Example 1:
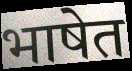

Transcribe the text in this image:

भाषेत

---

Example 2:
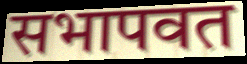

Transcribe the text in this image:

सभापवत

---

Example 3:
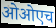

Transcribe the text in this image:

ओओएच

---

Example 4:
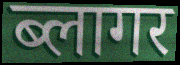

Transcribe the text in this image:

ब्लागर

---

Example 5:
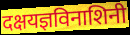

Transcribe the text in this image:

दक्षयज्ञविनाशिनी